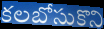
కలబోసుకొని